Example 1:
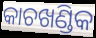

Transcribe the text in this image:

କାଚଖଣ୍ଡିକ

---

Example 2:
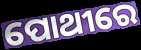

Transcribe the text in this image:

ପୋଥୀରେ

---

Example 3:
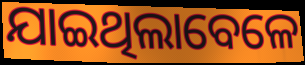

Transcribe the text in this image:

ଯାଇଥିଲାବେଳେ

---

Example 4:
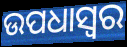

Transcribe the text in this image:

ଉପଧାସ୍ୱର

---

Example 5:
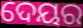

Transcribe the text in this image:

ଦେୟର